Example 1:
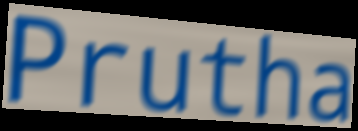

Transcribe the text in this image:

Prutha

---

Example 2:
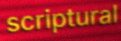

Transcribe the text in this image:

scriptural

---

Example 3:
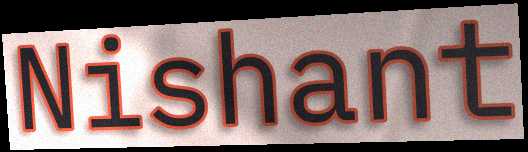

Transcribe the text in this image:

Nishant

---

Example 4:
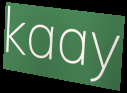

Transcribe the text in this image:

kaay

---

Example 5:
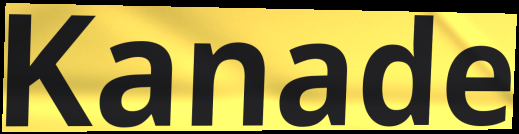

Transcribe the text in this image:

Kanade